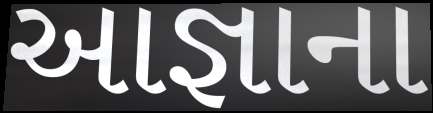
આજ્ઞાના